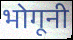
भोगूनी